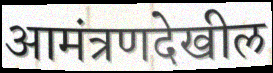
आमंत्रणदेखील